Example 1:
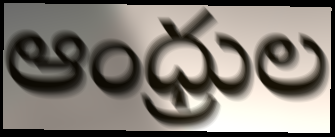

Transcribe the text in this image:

ఆంధ్రుల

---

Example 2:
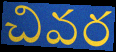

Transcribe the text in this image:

చివర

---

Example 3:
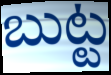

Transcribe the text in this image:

బుట్ట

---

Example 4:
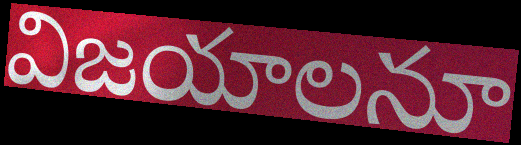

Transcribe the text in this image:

విజయాలనూ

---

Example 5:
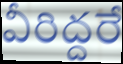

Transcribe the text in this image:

వీరిద్దరే